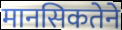
मानसिकतेने